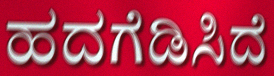
ಹದಗೆಡಿಸಿದೆ